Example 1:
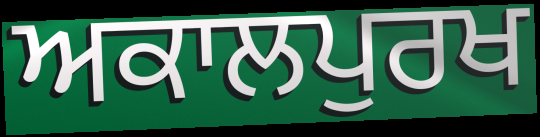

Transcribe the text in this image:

ਅਕਾਲਪੁਰਖ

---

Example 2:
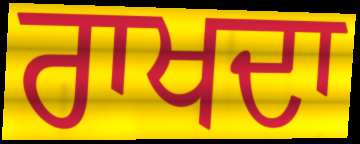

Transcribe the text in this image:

ਰਾਖਦਾ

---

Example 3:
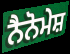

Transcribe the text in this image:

ਨੈਨੋਮੇਸ਼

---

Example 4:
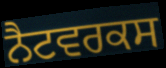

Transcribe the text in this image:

ਨੈਟਵਰਕਸ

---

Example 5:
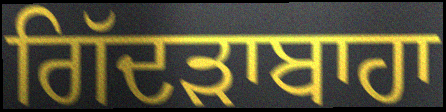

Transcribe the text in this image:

ਗਿੱਦੜਾਬਾਹਾ